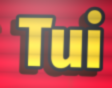
Tui